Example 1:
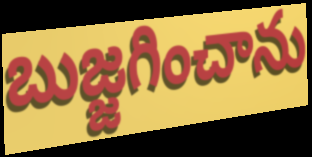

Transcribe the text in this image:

బుజ్జగించాను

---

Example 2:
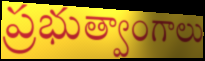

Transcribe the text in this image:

ప్రభుత్వాంగాలు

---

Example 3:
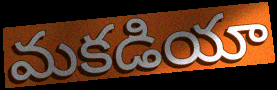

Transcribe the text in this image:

మకడియా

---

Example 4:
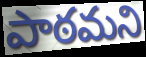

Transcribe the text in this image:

పాఠమని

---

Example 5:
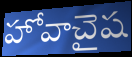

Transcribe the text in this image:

హోవాచైష